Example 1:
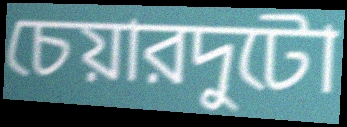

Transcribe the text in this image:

চেয়ারদুটো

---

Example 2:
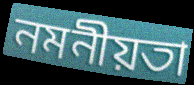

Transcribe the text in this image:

নমনীয়তা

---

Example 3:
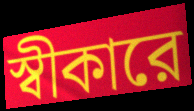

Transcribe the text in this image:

স্বীকারে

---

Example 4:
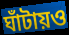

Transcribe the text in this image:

ঘাঁটায়ও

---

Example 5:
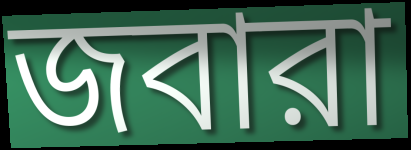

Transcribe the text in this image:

জবারা